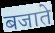
बजाते